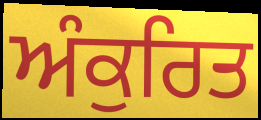
ਅੰਕੁਰਿਤ